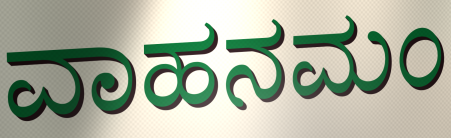
ವಾಹನಮಂ